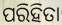
ପରିହିତା